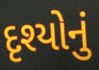
દૃશ્યોનું